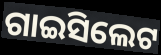
ଗାଇସିଲେଟ